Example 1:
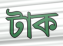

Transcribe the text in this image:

টাক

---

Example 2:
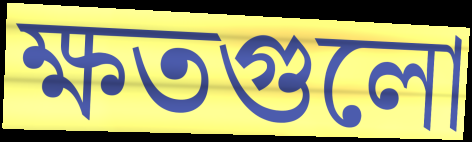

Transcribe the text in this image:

ক্ষতগুলো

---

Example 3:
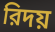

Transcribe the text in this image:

রিদয়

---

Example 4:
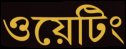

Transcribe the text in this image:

ওয়েটিং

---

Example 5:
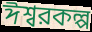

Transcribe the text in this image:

ঈশ্বরকল্প